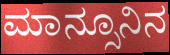
ಮಾನ್ಸೂನಿನ